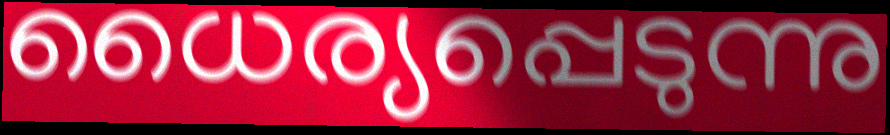
ധൈര്യപ്പെടുന്നു